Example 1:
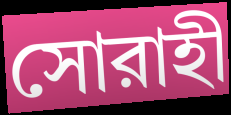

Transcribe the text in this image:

সোরাহী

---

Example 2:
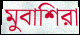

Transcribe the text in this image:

মুবাশিরা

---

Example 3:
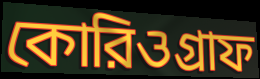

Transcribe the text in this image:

কোরিওগ্রাফ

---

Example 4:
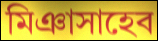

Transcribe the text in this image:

মিঞাসাহেব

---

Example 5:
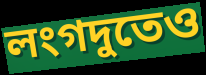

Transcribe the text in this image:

লংগদুতেও